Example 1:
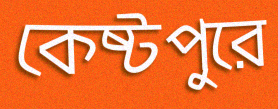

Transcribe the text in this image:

কেষ্টপুরে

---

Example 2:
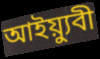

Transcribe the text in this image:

আইয়্যুবী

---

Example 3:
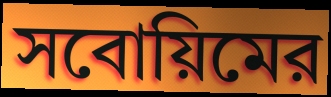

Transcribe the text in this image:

সবোয়িমের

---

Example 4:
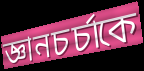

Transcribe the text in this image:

জ্ঞানচর্চাকে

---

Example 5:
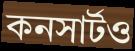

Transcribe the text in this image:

কনসার্টও